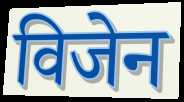
विजेन